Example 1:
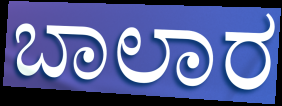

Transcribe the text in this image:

ಬಾಲಾರ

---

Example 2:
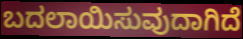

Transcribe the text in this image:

ಬದಲಾಯಿಸುವುದಾಗಿದೆ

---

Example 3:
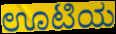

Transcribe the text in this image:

ಊಟಿಯ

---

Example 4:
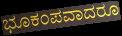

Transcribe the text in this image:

ಭೂಕಂಪವಾದರೂ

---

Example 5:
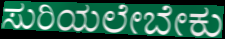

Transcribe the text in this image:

ಸುರಿಯಲೇಬೇಕು